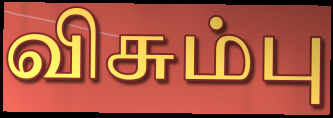
விசும்பு